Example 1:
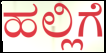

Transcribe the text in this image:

ಹಲ್ಲಿಗೆ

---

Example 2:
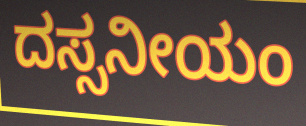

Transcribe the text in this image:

ದಸ್ಸನೀಯಂ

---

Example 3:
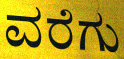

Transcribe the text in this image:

ವರೆಗು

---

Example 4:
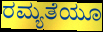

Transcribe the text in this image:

ರಮ್ಯತೆಯೂ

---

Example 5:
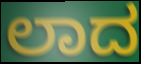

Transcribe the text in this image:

ಲಾದ